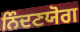
ਨਿੰਦਣਯੋਗ